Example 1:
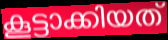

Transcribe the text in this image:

കൂട്ടാക്കിയത്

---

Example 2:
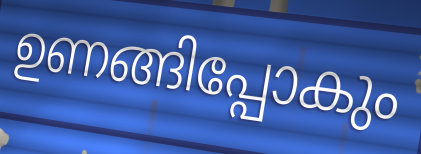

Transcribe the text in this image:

ഉണങ്ങിപ്പോകും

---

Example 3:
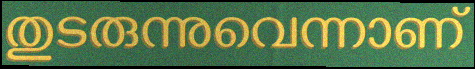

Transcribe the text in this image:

തുടരുന്നുവെന്നാണ്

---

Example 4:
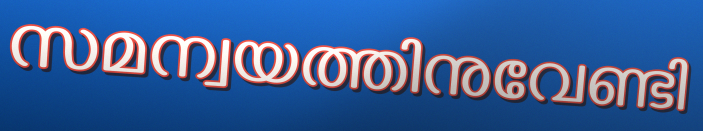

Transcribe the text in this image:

സമന്വയത്തിനുവേണ്ടി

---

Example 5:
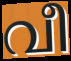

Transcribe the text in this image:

വീ